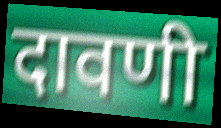
दावणी